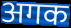
अगक